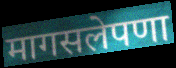
मागसलेपणा